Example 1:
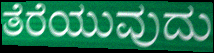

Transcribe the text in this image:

ತೆರೆಯುವುದು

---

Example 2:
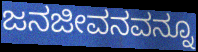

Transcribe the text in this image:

ಜನಜೀವನವನ್ನೂ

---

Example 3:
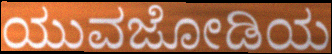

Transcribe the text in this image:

ಯುವಜೋಡಿಯ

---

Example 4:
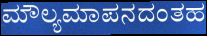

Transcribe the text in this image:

ಮೌಲ್ಯಮಾಪನದಂತಹ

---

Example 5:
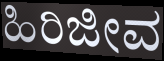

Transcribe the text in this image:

ಹಿರಿಜೀವ